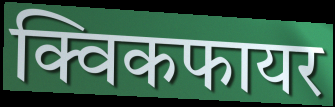
क्विकफायर